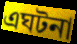
এঘটনা